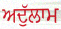
ਅਦੁੱਲਾਮ